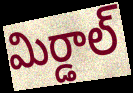
మిర్డాల్